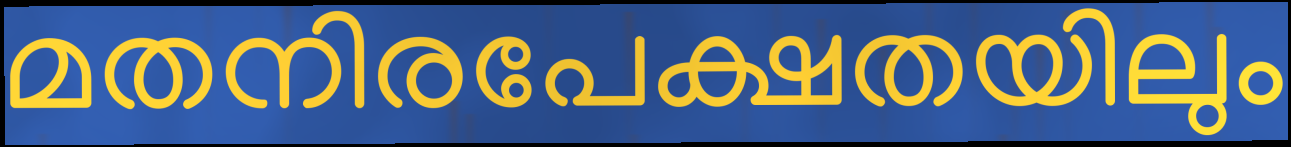
മതനിരപേക്ഷതയിലും